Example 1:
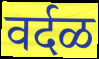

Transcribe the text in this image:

वर्दळ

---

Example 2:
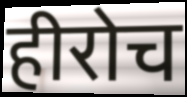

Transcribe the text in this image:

हीरोच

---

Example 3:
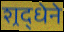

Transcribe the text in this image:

श्रद्धेने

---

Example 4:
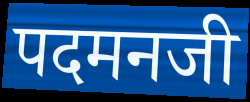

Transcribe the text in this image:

पदमनजी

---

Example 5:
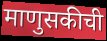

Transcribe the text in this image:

माणुसकीची